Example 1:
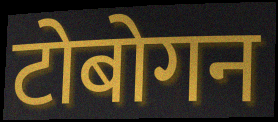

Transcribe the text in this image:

टोबोगन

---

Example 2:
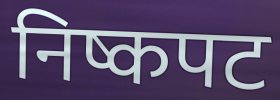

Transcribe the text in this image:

निष्कपट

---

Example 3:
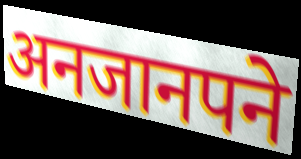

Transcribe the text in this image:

अनजानपने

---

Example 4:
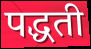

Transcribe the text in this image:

पद्धती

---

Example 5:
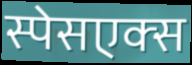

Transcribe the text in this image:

स्‍पेसएक्‍स